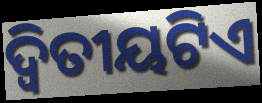
ଦ୍ୱିତୀୟଟିଏ